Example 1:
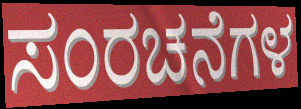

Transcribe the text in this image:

ಸಂರಚನೆಗಳ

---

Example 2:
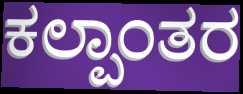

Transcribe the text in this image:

ಕಲ್ಪಾಂತರ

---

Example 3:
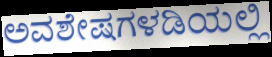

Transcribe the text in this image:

ಅವಶೇಷಗಳಡಿಯಲ್ಲಿ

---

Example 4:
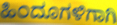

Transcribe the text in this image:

ಹಿಂದೂಗಳಿಗಾಗಿ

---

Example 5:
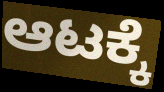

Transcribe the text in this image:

ಆಟಕ್ಕೆ